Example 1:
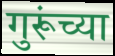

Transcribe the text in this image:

गुरूंच्या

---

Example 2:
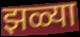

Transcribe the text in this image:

झळ्या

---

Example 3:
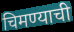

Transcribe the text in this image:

चिमण्याची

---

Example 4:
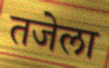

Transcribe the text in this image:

तजेला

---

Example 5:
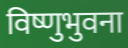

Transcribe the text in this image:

विष्णुभुवना